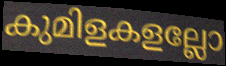
കുമിളകളല്ലോ